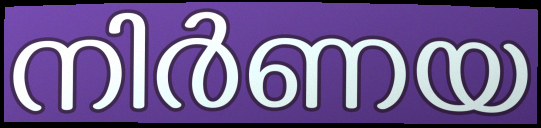
നിർണയ